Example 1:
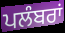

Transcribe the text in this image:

ਪਲੰਬਰਾਂ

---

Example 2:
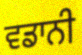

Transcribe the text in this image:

ਵਡਾਨੀ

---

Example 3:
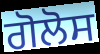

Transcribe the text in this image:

ਗੋਲੋਸ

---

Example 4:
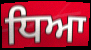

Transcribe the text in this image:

ਧਿਆ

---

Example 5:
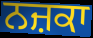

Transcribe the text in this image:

ਨਜ਼ਕਾ